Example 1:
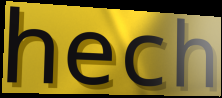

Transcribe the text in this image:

hech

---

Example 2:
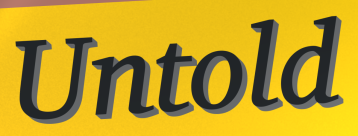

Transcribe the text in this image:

Untold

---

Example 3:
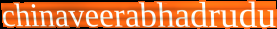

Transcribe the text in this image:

chinaveerabhadrudu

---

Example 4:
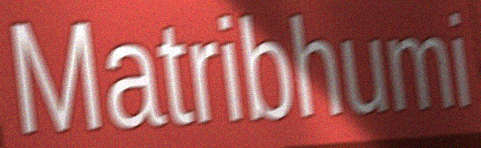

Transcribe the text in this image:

Matribhumi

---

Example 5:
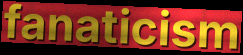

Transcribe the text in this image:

fanaticism